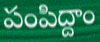
పంపిద్దాం